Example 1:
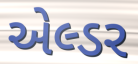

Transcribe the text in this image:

એલ્ડર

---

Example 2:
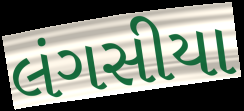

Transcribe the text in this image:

લંગસીયા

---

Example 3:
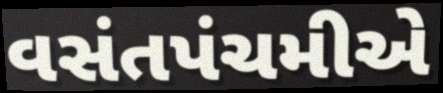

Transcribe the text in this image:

વસંતપંચમીએ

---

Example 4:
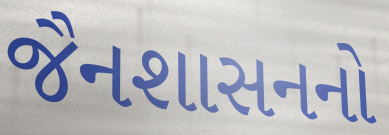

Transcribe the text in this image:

જૈનશાસનનો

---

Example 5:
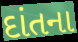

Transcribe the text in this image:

દાંતના